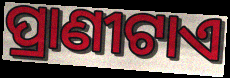
ପ୍ରାଣୀଟାଏ